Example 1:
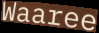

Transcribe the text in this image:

Waaree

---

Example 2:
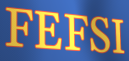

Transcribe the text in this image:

FEFSI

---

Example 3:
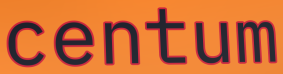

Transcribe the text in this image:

centum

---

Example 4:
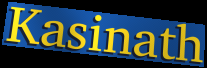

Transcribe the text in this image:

Kasinath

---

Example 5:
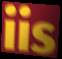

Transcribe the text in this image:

iis